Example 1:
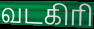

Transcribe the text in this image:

வடகிரி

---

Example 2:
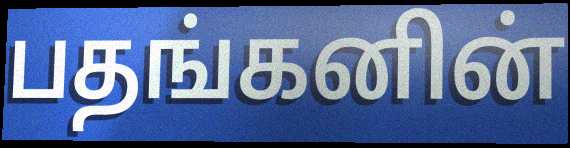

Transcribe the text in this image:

பதங்கனின்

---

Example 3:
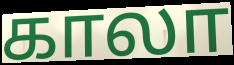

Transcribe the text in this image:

காலா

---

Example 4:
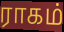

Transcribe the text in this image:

ராகம்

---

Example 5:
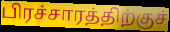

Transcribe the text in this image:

பிரச்சாரத்திற்குச்